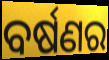
ବର୍ଷଣର